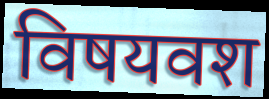
विषयवश